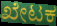
ಖೇಟಕ